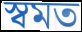
স্বমত